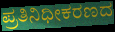
ಪ್ರತಿನಿಧೀಕರಣದ